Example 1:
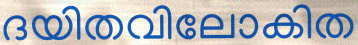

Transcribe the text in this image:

ദയിതവിലോകിത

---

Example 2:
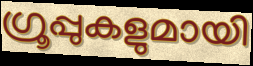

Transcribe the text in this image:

ഗ്രൂപ്പുകളുമായി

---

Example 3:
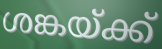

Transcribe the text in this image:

ശങ്കയ്ക്ക്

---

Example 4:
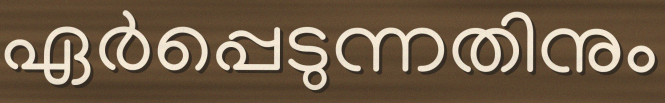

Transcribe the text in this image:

ഏർപ്പെടുന്നതിനും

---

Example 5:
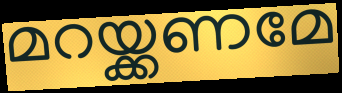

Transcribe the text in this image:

മറയ്ക്കണമേ